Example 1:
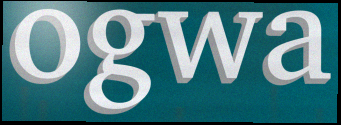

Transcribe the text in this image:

ogwa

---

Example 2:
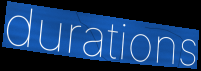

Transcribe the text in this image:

durations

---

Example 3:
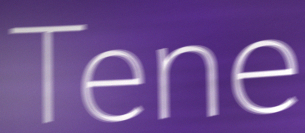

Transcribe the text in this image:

Tene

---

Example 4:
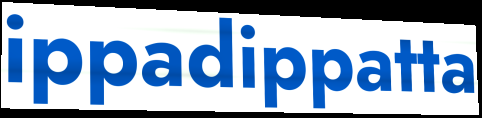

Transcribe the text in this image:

ippadippatta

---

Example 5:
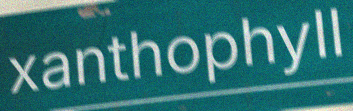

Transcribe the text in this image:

xanthophyll